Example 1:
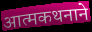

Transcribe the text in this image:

आत्मकथनाने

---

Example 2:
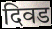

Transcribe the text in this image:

दिवड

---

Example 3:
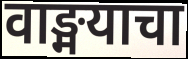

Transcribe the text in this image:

वाङ्मयाचा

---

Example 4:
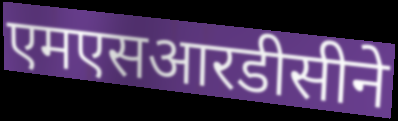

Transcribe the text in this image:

एमएसआरडीसीने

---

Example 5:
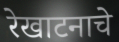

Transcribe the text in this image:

रेखाटनाचे